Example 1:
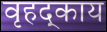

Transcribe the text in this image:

वृहद्काय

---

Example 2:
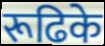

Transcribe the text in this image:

रूढिके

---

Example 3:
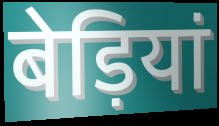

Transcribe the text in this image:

बेड़ियां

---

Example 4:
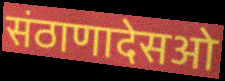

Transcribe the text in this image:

संठाणादेसओ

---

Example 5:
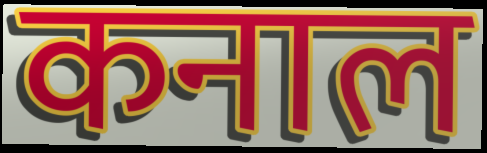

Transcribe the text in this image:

कनाल